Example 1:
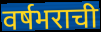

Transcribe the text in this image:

वर्षभराची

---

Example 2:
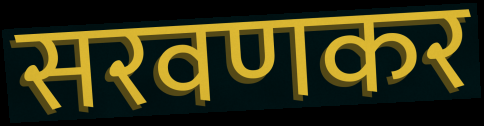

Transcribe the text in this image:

सरवणकर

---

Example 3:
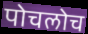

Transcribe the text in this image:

पोचलोच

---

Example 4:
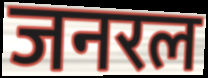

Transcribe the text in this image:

जनरल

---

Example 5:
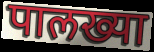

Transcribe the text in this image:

पालख्या